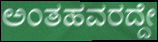
ಅಂತಹವರದ್ದೇ